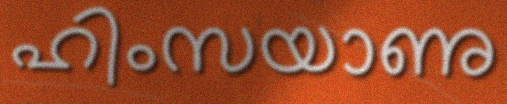
ഹിംസയാണു